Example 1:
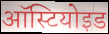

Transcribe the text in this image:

ऑस्टियोइड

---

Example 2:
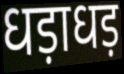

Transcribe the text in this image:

धड़ाधड़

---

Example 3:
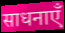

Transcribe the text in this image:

साधनाएँ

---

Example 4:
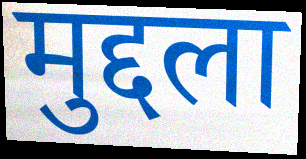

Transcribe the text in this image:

मुद्दला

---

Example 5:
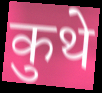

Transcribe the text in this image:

कुथे